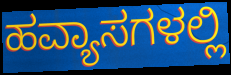
ಹವ್ಯಾಸಗಳಲ್ಲಿ